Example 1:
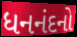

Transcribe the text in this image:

ધનનંદનો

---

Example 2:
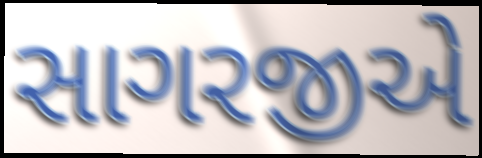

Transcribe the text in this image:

સાગરજીએ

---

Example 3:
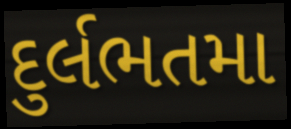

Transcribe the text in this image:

દુર્લભતમા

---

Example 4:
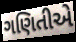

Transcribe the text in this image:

ગણિતીએ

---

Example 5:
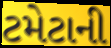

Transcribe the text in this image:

ટમેટાની